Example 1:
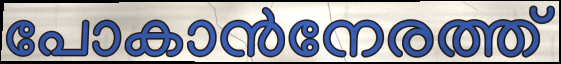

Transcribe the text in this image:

പോകാൻനേരത്ത്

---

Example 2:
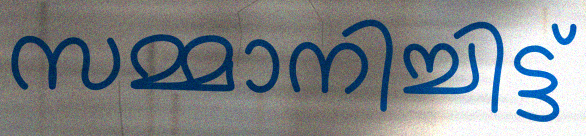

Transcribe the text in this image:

സമ്മാനിച്ചിട്ട്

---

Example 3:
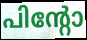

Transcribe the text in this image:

പിന്റോ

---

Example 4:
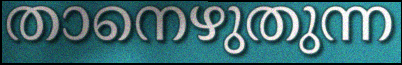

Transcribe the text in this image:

താനെഴുതുന്ന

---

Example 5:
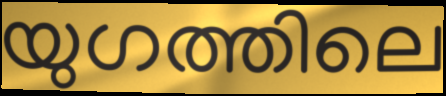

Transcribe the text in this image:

യുഗത്തിലെ